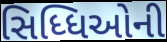
સિધ્ધિઓની